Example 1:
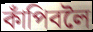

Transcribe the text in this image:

কাঁপিবলৈ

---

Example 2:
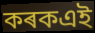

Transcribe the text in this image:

কৰকএই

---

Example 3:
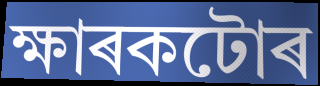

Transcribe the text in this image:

ক্ষাৰকটোৰ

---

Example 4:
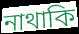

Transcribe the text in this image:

নাথাকি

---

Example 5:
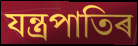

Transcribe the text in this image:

যন্ত্ৰপাতিৰ